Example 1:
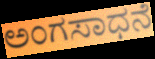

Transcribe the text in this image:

ಅಂಗಸಾಧನೆ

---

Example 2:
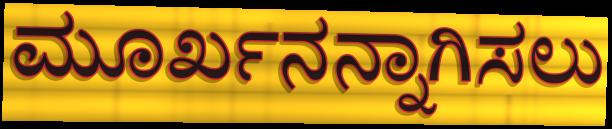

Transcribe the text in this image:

ಮೂರ್ಖನನ್ನಾಗಿಸಲು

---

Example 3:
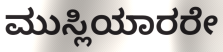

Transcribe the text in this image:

ಮುಸ್ಲಿಯಾರರೇ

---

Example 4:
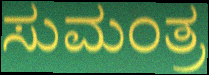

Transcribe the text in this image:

ಸುಮಂತ್ರ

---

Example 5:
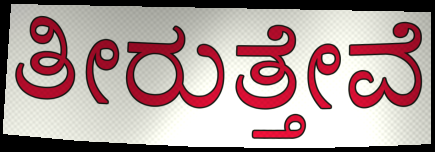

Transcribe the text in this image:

ತೀರುತ್ತೇವೆ